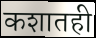
कशातही